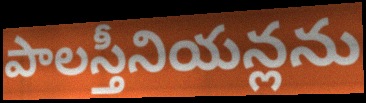
పాలస్తీనియన్లను